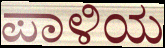
ಪಾಳಿಯ